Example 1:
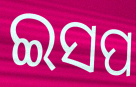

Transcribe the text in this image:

ଇସପ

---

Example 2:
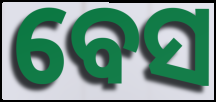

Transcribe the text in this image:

ବେସ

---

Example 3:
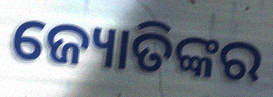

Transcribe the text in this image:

ଜ୍ୟୋତିଙ୍କର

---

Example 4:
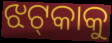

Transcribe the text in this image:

ଝଟ୍‌କାକୁ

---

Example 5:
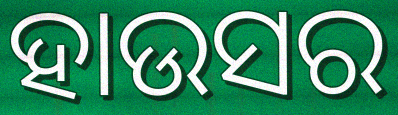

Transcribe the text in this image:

ହାଉସର